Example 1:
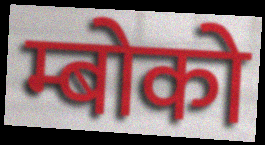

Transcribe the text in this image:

म्बोको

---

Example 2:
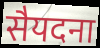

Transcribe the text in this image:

सैयदना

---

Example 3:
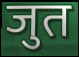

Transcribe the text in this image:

जुत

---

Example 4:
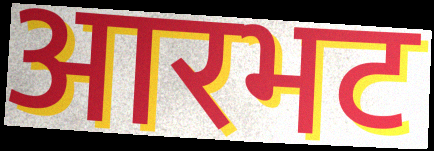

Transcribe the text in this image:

आरभट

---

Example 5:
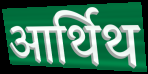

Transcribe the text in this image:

आर्थिथ